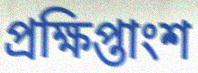
প্রক্ষিপ্তাংশ